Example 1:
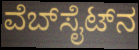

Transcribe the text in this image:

ವೆಬ್‍ಸೈಟ್‍ನ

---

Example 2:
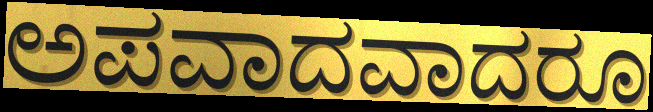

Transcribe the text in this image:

ಅಪವಾದವಾದರೂ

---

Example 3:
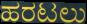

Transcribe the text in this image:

ಹರಟಲು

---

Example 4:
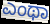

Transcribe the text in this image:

ಎಂಥಾ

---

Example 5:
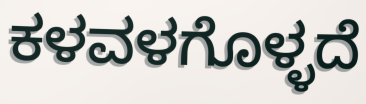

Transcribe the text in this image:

ಕಳವಳಗೊಳ್ಳದೆ